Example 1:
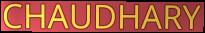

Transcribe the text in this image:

CHAUDHARY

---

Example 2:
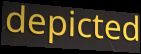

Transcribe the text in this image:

depicted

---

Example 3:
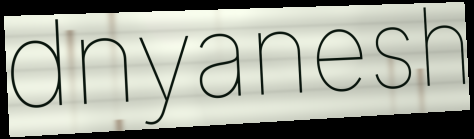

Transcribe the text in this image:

dnyanesh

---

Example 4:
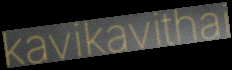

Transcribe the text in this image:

kavikavithai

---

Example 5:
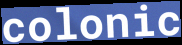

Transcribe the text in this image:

colonic